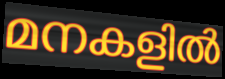
മനകളിൽ